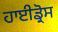
ਹਾਈਡ੍ਰੋਸ